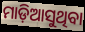
ମାଡ଼ିଆସୁଥିବା